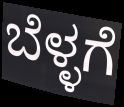
ಬೆಳ್ಳಗೆ